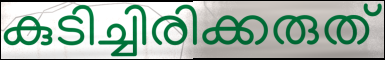
കുടിച്ചിരിക്കരുത്